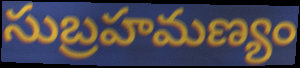
సుబ్రహమణ్యం